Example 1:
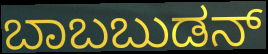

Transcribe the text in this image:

ಬಾಬಬುಡನ್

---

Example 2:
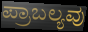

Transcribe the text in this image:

ಪ್ರಾಬಲ್ಯವು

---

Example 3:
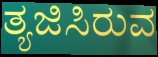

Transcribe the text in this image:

ತ್ಯಜಿಸಿರುವ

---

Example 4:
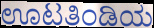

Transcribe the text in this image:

ಊಟತಿಂಡಿಯ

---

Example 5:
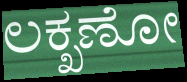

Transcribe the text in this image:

ಲಕ್ಖಣೋ